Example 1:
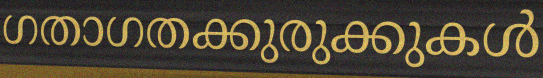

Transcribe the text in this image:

ഗതാഗതക്കുരുക്കുകൾ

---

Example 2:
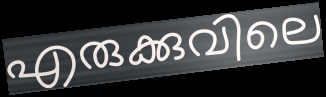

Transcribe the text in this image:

എരുക്കുവിലെ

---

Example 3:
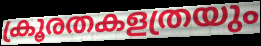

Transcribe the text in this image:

ക്രൂരതകളത്രയും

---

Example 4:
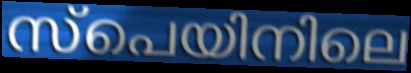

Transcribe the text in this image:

സ്‌പെയിനിലെ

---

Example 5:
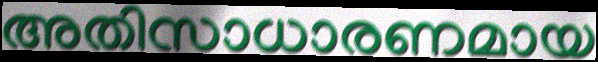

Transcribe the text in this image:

അതിസാധാരണമായ